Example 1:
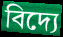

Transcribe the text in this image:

বিদ্যে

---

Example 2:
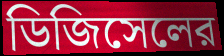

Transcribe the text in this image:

ডিজিসেলের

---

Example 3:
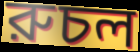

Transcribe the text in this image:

রুচল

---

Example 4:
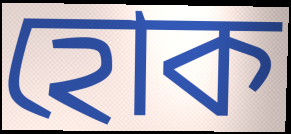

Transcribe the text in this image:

হোক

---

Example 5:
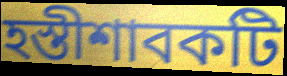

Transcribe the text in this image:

হস্তীশাবকটি